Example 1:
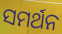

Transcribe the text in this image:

ସମର୍ଥନ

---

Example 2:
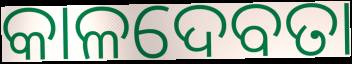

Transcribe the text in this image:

କାଳଦେବତା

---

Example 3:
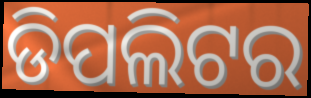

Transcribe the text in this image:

ଡିପଲିଟର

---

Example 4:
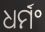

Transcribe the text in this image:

ଧର୍ମଂ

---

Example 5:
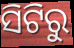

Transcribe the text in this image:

ସିଟିରୁ